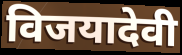
विजयादेवी